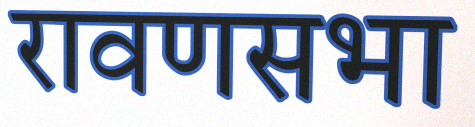
रावणसभा